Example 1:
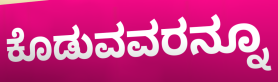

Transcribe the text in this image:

ಕೊಡುವವರನ್ನೂ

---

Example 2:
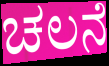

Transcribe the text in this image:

ಚಲನೆ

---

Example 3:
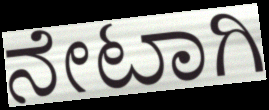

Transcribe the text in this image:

ನೇಟಾಗಿ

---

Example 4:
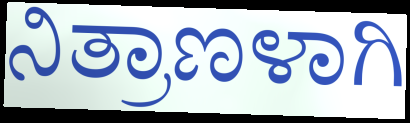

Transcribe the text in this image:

ನಿತ್ರಾಣಳಾಗಿ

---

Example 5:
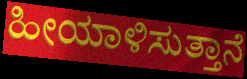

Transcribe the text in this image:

ಹೀಯಾಳಿಸುತ್ತಾನೆ